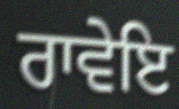
ਰਾਵੇਇ